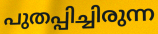
പുതപ്പിച്ചിരുന്ന